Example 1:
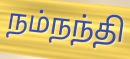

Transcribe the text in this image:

நம்நந்தி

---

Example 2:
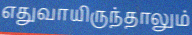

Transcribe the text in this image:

எதுவாயிருந்தாலும்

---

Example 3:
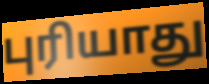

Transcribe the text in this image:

புரியாது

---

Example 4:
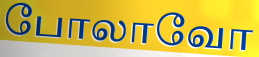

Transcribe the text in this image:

போலாவோ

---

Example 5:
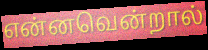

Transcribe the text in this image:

என்னவென்றால்